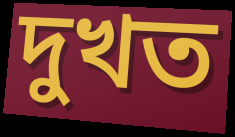
দুখত